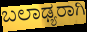
ಬಲಾಢ್ಯರಾಗಿ